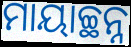
ମାୟାଚ୍ଛନ୍ନ